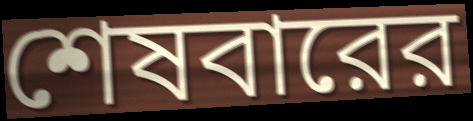
শেষবারের